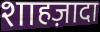
शाहज़ादा